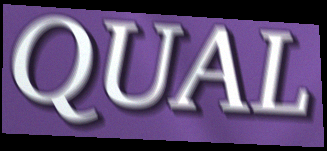
QUAL